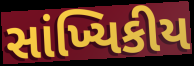
સાંખ્યિકીય